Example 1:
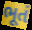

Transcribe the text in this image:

ભૂતં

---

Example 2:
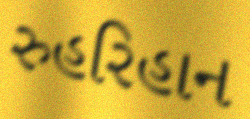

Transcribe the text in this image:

રુહરિહાન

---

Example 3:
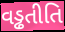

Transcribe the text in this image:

વડ્ઢતીતિ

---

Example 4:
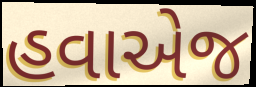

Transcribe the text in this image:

હવાએજ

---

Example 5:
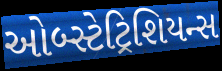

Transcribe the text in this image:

ઓબ્સ્ટેટ્રિશિયન્સ